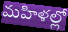
మహిళల్లో